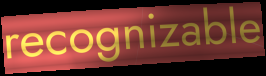
recognizable